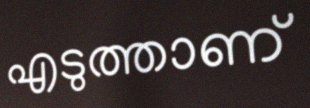
എടുത്താണ്